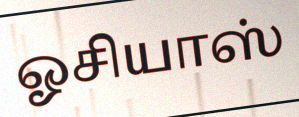
ஓசியாஸ்